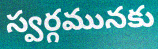
స్వర్గమునకు